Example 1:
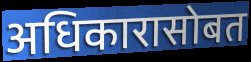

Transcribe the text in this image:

अधिकारासोबत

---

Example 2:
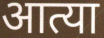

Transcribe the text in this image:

आत्या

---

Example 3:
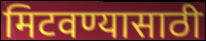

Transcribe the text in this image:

मिटवण्यासाठी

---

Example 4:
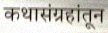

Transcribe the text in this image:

कथासंग्रहांतून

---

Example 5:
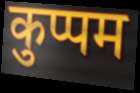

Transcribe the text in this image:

कुप्पम